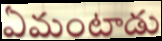
ఏమంటాడు